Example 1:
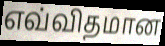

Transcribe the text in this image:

எவ்விதமான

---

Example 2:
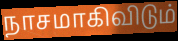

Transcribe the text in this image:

நாசமாகிவிடும்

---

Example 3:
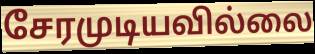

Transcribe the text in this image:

சேரமுடியவில்லை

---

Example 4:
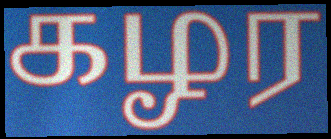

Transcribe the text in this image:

கழர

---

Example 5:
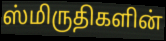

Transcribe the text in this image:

ஸ்மிருதிகளின்